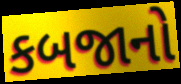
કબજાનો